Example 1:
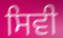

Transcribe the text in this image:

ਸਿਵੀ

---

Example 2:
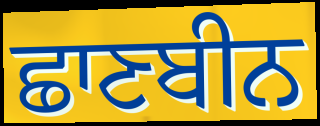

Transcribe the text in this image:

ਛਾਣਬੀਨ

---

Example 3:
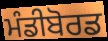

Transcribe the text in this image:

ਮੰਡੀਬੋਰਡ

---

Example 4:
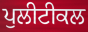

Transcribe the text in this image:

ਪੁਲੀਟੀਕਲ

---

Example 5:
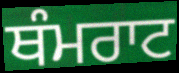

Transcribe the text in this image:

ਥੰਮਰਾਟ